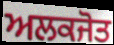
ਅਲਕਜੋਤ